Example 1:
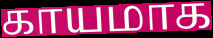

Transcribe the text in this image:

காயமாக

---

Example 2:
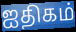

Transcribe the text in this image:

ஐதிகம்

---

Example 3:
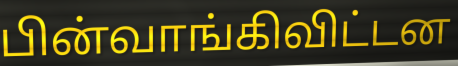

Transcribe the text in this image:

பின்வாங்கிவிட்டன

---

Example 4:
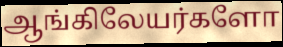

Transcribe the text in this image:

ஆங்கிலேயர்களோ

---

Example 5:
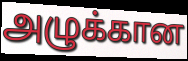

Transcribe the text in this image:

அழுக்கான